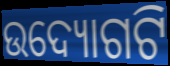
ଉଦ୍ୟୋଗଟି